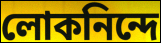
লোকনিন্দে